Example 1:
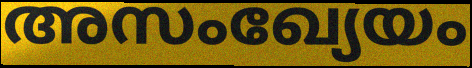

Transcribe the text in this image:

അസംഖ്യേയം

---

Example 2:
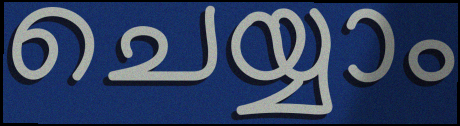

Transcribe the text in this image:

ചെയ്യാം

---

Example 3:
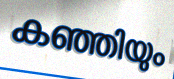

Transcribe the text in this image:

കഞ്ഞിയും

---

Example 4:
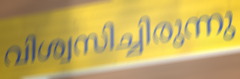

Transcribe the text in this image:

വിശ്വസിച്ചിരുന്നു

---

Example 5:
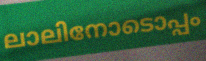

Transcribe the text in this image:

ലാലിനോടൊപ്പം